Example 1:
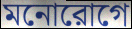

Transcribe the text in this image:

মনোরোগে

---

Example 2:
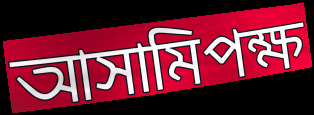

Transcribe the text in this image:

আসামিপক্ষ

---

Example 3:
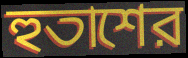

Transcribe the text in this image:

হুতাশের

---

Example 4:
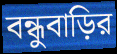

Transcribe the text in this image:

বন্ধুবাড়ির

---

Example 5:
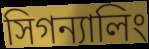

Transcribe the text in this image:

সিগন্যালিং